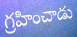
గ్రహించాడు